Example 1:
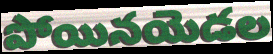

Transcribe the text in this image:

పోయినయెడల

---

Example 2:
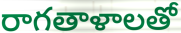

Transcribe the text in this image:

రాగతాళాలతో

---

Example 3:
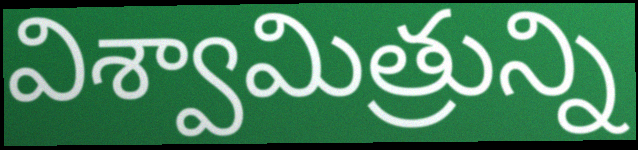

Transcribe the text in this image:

విశ్వామిత్రున్ని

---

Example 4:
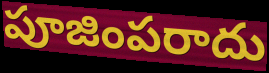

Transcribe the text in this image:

పూజింపరాదు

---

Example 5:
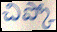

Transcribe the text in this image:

చిప్కో